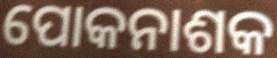
ପୋକନାଶକ